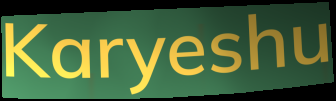
Karyeshu